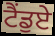
ਟੈਂਡੁਏ